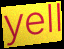
yell